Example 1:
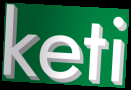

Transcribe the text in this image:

keti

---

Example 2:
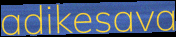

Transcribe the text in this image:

adikesava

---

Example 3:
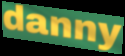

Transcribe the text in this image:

danny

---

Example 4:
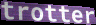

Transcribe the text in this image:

trotter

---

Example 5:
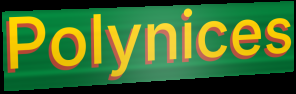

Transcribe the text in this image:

Polynices